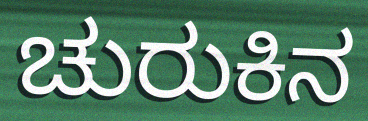
ಚುರುಕಿನ